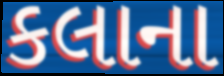
કલાના